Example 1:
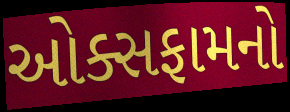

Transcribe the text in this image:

ઓક્સફામનો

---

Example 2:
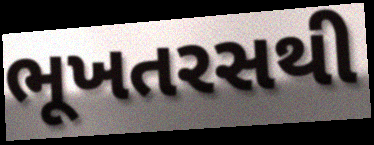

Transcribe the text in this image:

ભૂખતરસથી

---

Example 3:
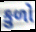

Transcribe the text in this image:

કુળો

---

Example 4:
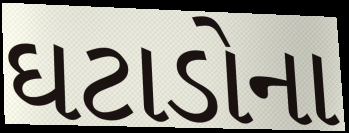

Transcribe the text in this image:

ઘટાડોના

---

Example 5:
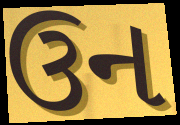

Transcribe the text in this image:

ઉન